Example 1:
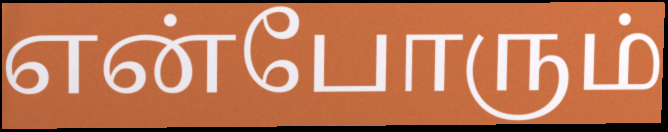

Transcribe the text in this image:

என்போரும்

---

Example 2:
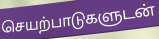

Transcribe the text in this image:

செயற்பாடுகளுடன்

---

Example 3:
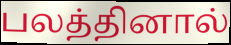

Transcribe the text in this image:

பலத்தினால்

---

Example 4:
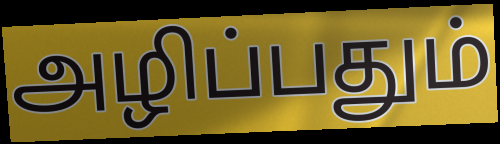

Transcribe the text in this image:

அழிப்பதும்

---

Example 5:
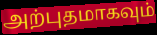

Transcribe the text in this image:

அற்புதமாகவும்